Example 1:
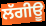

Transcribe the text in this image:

ਲੱਗੀਊ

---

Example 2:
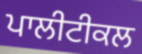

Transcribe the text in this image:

ਪਾਲੀਟੀਕਲ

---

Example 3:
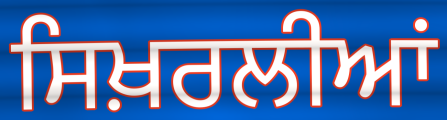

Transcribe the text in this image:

ਸਿਖ਼ਰਲੀਆਂ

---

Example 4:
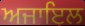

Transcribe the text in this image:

ਅਜਾਇਲ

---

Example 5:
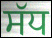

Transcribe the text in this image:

ਸੱਧ